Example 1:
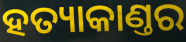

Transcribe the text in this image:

ହତ୍ୟାକାଣ୍ତର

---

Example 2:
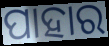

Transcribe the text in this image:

ପାହାର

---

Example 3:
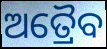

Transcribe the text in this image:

ଅତ୍ରୈବ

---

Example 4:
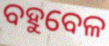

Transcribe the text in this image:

ବହୁବେଳ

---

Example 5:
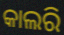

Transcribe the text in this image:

କାଲରି